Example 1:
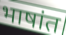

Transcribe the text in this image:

भाषांत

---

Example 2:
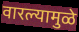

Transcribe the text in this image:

वारल्यामुळे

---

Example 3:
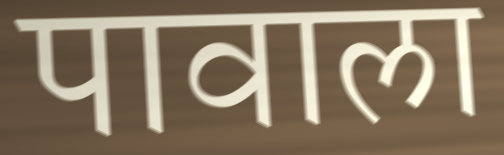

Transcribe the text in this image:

पावाला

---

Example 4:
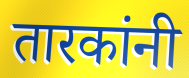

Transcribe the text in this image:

तारकांनी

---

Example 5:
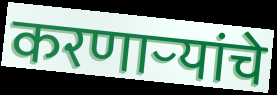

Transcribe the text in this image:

करणाऱ्यांचे